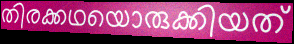
തിരക്കഥയൊരുക്കിയത്